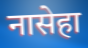
नासेहा